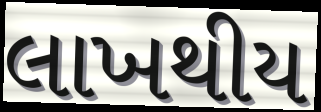
લાખથીય